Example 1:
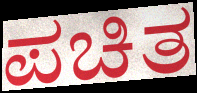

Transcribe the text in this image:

ಪಚಿತ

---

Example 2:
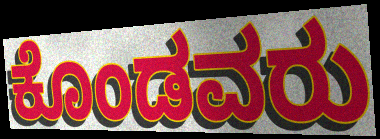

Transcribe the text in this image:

ಕೊಂಡವರು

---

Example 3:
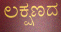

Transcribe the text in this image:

ಲಕ್ಷಣದ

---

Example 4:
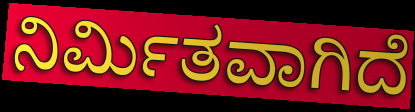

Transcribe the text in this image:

ನಿರ್ಮಿತವಾಗಿದೆ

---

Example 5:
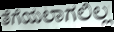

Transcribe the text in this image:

ತೆಗೆಯಲಾಗಲಿಲ್ಲ